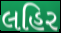
લહિર